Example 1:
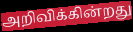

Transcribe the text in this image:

அறிவிக்கின்றது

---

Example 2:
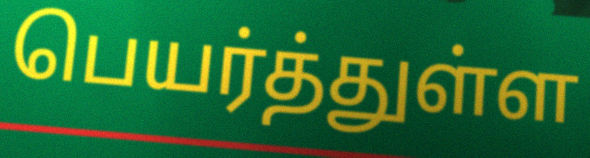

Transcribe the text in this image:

பெயர்த்துள்ள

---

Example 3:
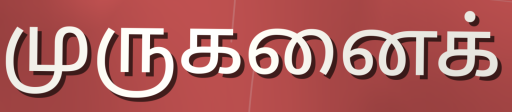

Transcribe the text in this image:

முருகனைக்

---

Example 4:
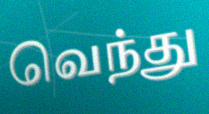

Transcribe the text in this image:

வெந்து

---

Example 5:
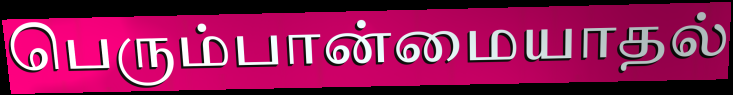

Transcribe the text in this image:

பெரும்பான்மையாதல்